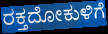
ರಕ್ತದೋಕುಳಿಗೆ